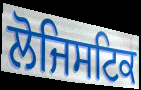
ਲੋਜਿਸਟਿਕ